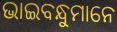
ଭାଇବନ୍ଧୁମାନେ